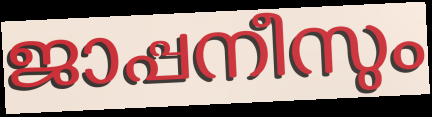
ജാപ്പനീസും